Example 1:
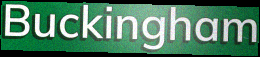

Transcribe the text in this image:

Buckingham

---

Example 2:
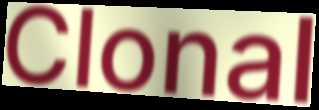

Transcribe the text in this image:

Clonal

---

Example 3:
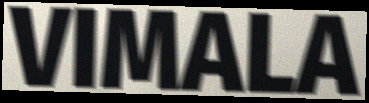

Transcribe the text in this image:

VIMALA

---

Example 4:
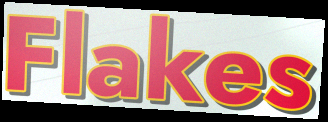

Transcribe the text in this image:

Flakes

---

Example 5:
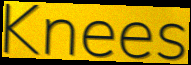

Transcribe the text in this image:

Knees